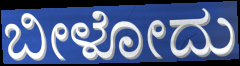
ಬೀಳೋದು